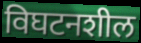
विघटनशील